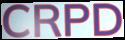
CRPD